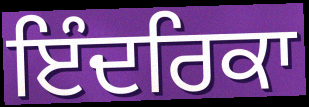
ਇੰਦਰਿਕਾ